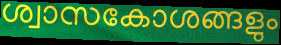
ശ്വാസകോശങ്ങളും